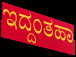
ಇದ್ದಂತಹಾ